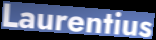
Laurentius